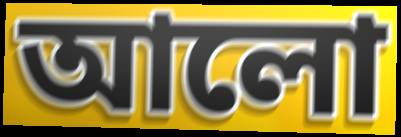
আলো